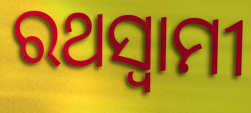
ରଥସ୍ୱାମୀ